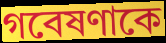
গবেষণাকে